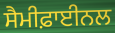
ਸੈਮੀਫ਼ਾਈਨਲ